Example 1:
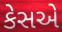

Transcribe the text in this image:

કેસએ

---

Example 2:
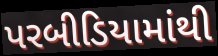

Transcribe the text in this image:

પરબીડિયામાંથી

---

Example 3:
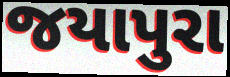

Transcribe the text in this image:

જયાપુરા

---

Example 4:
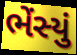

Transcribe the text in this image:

ભેંસ્યું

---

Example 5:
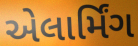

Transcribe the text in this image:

એલાર્મિંગ